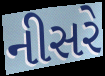
નીસરે